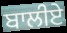
ਬਾਲੀਏ